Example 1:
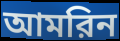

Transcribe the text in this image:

আমরিন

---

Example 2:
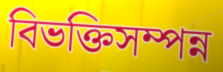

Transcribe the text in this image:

বিভক্তিসম্পন্ন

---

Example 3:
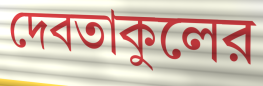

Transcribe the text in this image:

দেবতাকুলের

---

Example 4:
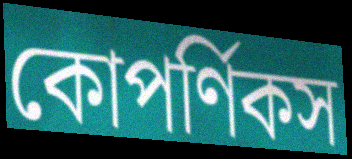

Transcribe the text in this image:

কোপর্ণিকস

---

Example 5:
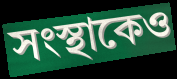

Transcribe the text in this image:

সংস্থাকেও